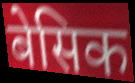
बेसिक